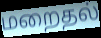
மறைதல்